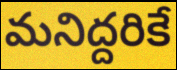
మనిద్దరికే